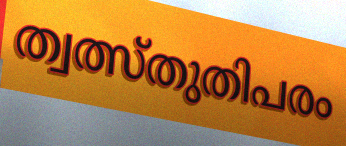
ത്വത്സ്തുതിപരം